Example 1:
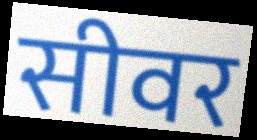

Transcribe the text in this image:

सीवर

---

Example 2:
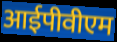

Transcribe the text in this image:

आईपीवीएम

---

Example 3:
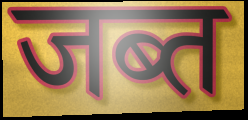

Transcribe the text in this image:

जब्त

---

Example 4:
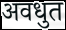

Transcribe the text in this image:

अवधुत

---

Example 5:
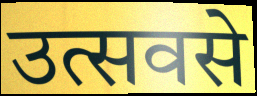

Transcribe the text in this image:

उत्सवसे